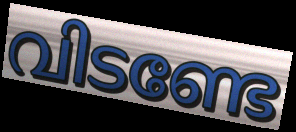
വിടണ്ടേ